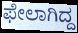
ಫೇಲಾಗಿದ್ದ